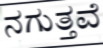
ನಗುತ್ತವೆ